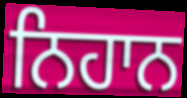
ਨਿਹਾਨ